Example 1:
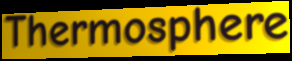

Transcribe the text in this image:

Thermosphere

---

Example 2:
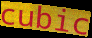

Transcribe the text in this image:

cubic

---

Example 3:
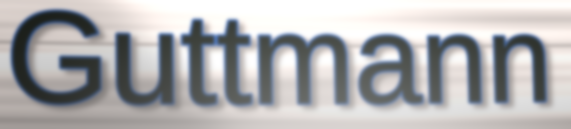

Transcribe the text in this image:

Guttmann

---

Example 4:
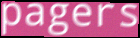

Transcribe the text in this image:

pagers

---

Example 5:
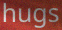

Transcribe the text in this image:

hugs